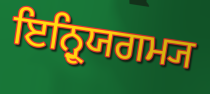
ਇਨ੍ਦ੍ਰਿਯਗਮ੍ਯ